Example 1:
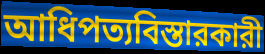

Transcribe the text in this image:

আধিপত্যবিস্তারকারী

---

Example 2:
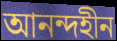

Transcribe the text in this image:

আনন্দহীন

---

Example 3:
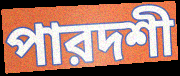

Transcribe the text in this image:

পারদশী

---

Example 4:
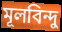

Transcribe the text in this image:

মূলবিন্দু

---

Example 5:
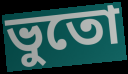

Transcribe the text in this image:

ভুতো